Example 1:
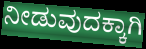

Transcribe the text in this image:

ನೀಡುವುದಕ್ಕಾಗಿ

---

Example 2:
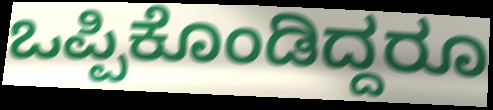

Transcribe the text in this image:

ಒಪ್ಪಿಕೊಂಡಿದ್ದರೂ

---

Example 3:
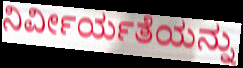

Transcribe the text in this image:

ನಿರ್ವೀರ್ಯತೆಯನ್ನು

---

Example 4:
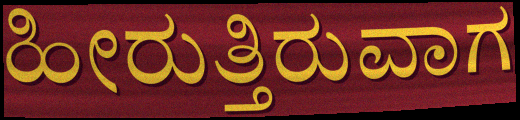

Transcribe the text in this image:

ಹೀರುತ್ತಿರುವಾಗ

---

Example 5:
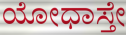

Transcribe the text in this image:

ಯೋಧಾಸ್ತೇ